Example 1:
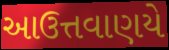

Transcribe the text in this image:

આઉત્તવાણયે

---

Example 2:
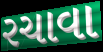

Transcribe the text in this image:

રચાવા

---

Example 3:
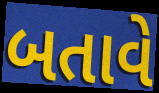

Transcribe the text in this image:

બતાવે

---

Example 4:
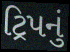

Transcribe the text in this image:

ટ્રિપનું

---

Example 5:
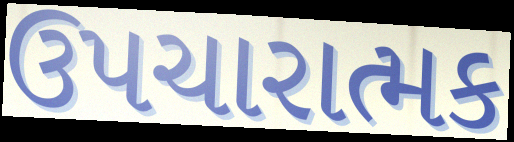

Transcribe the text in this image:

ઉપચારાત્મક